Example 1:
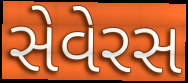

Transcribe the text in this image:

સેવેરસ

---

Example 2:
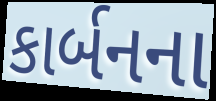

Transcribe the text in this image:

કાર્બનના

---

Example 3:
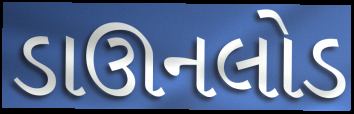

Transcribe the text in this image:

ડાઊનલોડ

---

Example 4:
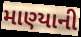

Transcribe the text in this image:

માણ્યાની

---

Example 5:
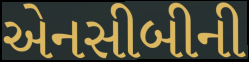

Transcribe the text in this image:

એનસીબીની